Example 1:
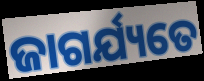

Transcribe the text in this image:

ଜାଗର୍ଯ୍ୟତେ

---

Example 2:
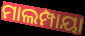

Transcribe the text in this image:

ମାଲମ୍ପାୟା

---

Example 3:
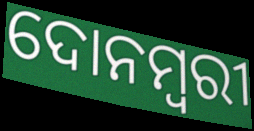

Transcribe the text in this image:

ଦୋନମ୍ବରୀ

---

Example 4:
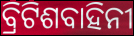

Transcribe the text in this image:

ବ୍ରିଟିଶବାହିନୀ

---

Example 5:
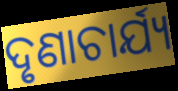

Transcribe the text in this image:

ଦୃଣାଚାର୍ଯ୍ୟ